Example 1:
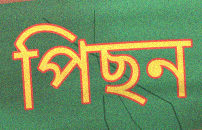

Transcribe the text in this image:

পিছন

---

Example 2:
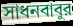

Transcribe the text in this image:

সাধনবাবুর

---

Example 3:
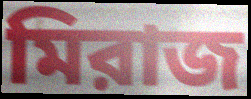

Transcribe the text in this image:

মিরাজ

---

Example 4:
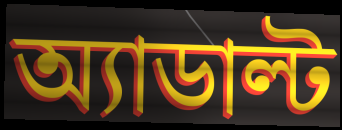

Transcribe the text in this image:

অ্যাডাল্ট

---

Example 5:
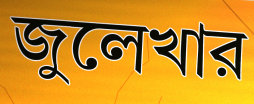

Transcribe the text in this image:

জুলেখার